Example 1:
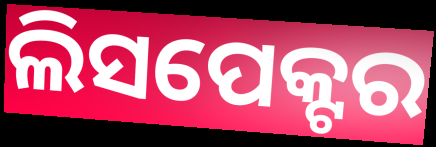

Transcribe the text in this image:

ଲିସପେକ୍ଟର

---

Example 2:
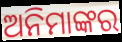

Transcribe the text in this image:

ଅନିମାଙ୍କର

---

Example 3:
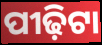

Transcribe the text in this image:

ପୀଢ଼ିଟା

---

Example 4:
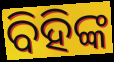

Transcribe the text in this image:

ବିହିଙ୍କ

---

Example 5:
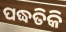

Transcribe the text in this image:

ପଦ୍ଧତିକି